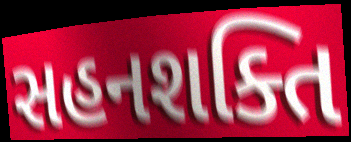
સહનશક્તિ